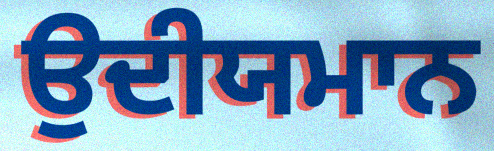
ਉਦੀਯਮਾਨ